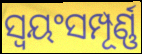
ସ୍ବୟଂସମ୍ପୂର୍ଣ୍ଣ